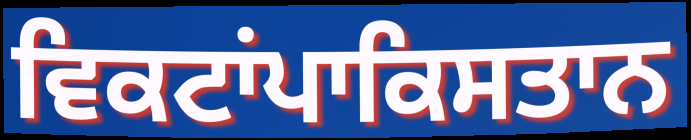
ਵਿਕਟਾਂਪਾਕਿਸਤਾਨ